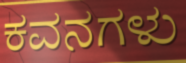
ಕವನಗಳು